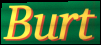
Burt